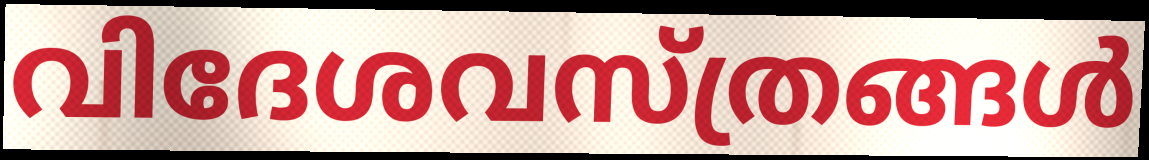
വിദേശവസ്ത്രങ്ങൾ